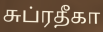
சுப்ரதீகா